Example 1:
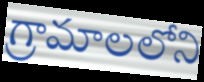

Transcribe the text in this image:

గ్రామాలలోని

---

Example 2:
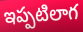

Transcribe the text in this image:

ఇప్పటిలాగ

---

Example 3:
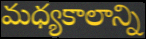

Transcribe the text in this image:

మధ్యకాలాన్ని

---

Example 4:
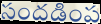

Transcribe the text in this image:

సందడింప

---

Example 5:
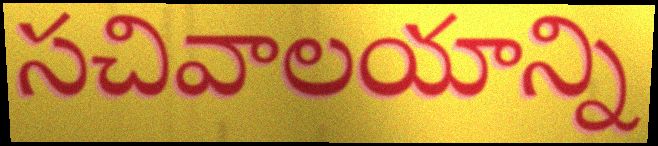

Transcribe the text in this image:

సచివాలయాన్ని